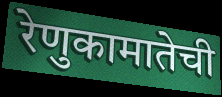
रेणुकामातेची